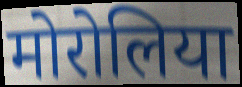
मोरोलिया